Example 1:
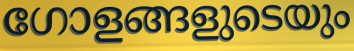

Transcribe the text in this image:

ഗോളങ്ങളുടെയും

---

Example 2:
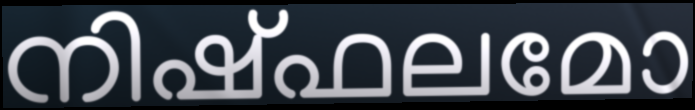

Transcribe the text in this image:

നിഷ്ഫലമോ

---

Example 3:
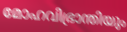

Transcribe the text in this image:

മോഹവിഭ്രാന്തിയും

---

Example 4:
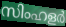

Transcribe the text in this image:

സിംഹളർ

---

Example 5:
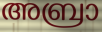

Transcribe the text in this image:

അബ്രാ